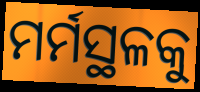
ମର୍ମସ୍ଥଳକୁ